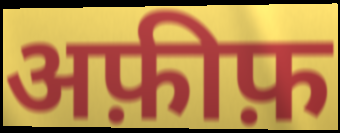
अफ़ीफ़